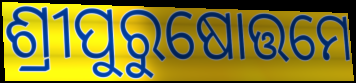
ଶ୍ରୀପୁରୁଷୋତ୍ତମେ